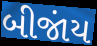
બીજાંય